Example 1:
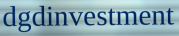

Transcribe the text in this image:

dgdinvestment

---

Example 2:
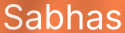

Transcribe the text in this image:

Sabhas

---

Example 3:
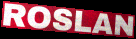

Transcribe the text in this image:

ROSLAN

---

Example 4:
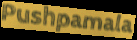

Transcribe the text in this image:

Pushpamala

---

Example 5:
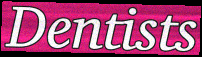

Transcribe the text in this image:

Dentists